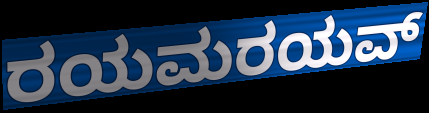
ರಯಮರಯವ್